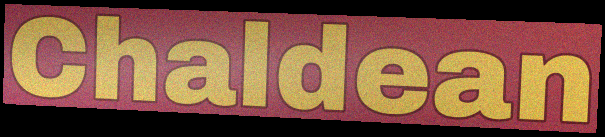
Chaldean